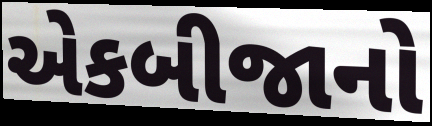
એકબીજાનો